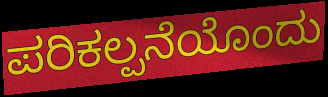
ಪರಿಕಲ್ಪನೆಯೊಂದು